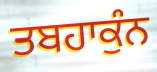
ਤਬਹਾਕੁੰਨ